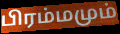
பிரம்மமும்